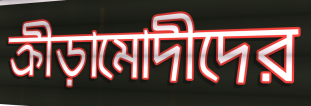
ক্রীড়ামোদীদের